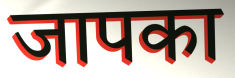
जापका